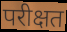
परीक्षत